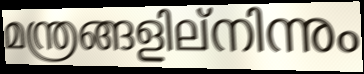
മന്ത്രങ്ങളില്നിന്നും